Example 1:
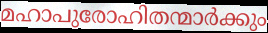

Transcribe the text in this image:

മഹാപുരോഹിതന്മാർക്കും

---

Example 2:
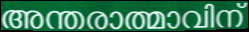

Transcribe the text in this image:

അന്തരാത്മാവിന്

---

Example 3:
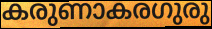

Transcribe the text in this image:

കരുണാകരഗുരു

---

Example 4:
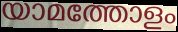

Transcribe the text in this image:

യാമത്തോളം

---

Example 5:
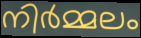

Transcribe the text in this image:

നിർമ്മലം